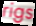
rigs